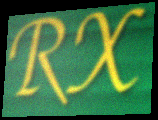
RX